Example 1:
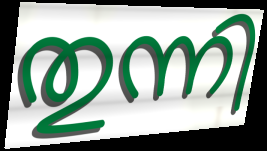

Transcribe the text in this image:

തുന്നി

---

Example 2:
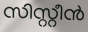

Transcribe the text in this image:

സിസ്റ്റീൻ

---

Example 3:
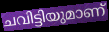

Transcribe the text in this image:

ചവിട്ടിയുമാണ്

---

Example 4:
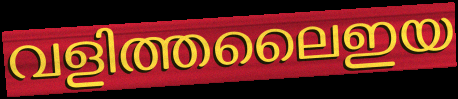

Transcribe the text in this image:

വളിത്തലൈഇയ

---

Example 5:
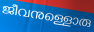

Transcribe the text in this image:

ജീവനുള്ളൊരു